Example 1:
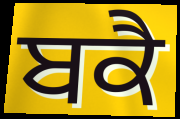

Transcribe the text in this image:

ਬਕੈ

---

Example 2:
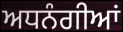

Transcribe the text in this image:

ਅਧਨੰਗੀਆਂ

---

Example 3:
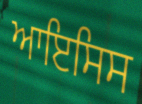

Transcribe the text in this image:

ਆਇਸਿਸ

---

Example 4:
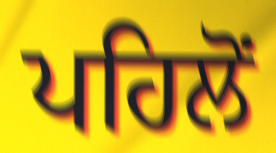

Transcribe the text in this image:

ਪਹਿਲੋਂ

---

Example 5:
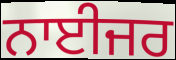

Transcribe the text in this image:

ਨਾਈਜਰ